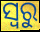
ସ୍ୱରୁ